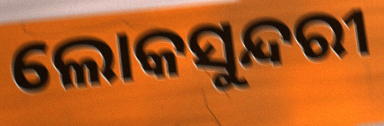
ଲୋକସୁନ୍ଦରୀ